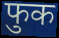
फुक